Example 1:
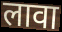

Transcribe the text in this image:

लावा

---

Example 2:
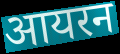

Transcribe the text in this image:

आयरन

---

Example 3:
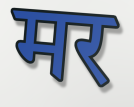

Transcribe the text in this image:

मर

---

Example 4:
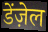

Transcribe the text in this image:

डेंज़ेल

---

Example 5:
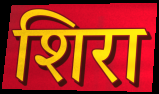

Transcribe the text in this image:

शिरा